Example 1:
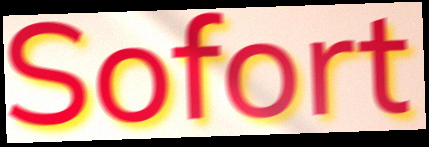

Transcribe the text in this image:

Sofort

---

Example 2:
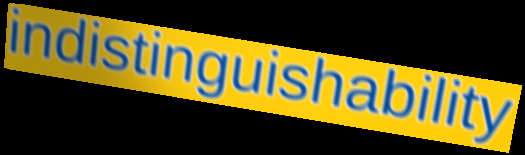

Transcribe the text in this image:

indistinguishability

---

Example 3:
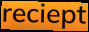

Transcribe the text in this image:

reciept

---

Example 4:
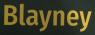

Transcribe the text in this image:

Blayney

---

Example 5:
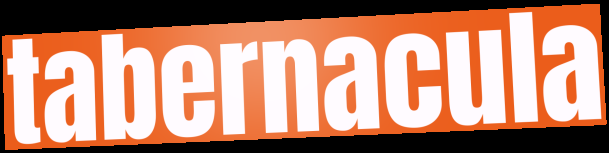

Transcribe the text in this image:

tabernacula